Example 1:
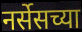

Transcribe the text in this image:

नर्सेसच्या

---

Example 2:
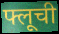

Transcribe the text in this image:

फ्लूची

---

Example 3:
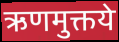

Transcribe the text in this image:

ऋणमुक्तये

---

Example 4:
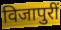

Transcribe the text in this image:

विजापुरीं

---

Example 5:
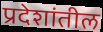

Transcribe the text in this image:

प्रदेशांतील